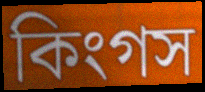
কিংগস